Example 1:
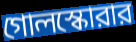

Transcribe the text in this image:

গোলস্কোরার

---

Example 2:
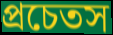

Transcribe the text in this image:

প্রচেতস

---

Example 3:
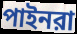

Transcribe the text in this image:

পাইনরা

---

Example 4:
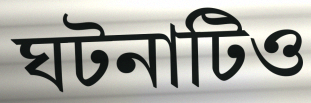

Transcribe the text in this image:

ঘটনাটিও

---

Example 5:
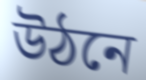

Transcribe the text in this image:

উঠনে